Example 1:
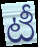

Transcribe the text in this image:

టీ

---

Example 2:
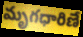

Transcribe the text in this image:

మృగధారిణే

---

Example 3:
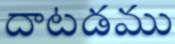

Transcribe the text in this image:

దాటడము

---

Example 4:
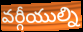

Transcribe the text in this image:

వర్గీయుల్ని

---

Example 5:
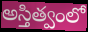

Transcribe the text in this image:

అస్తిత్వంలో